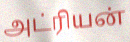
அட்ரியன்